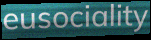
eusociality